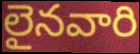
లైనవారి